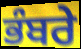
ਭੰਬਰੇ